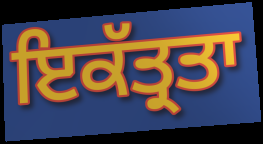
ਇਕੱਤ੍ਰਤਾ